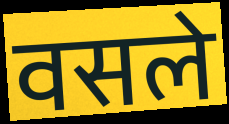
वसले